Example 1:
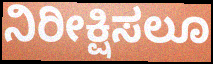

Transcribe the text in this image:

ನಿರೀಕ್ಷಿಸಲೂ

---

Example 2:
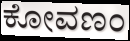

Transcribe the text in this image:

ಕೋವಣಂ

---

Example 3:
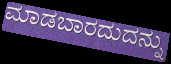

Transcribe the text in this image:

ಮಾಡಬಾರದುದನ್ನು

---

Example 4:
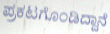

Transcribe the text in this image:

ಪ್ರಕಟಗೊಂಡಿದ್ದಾನೆ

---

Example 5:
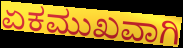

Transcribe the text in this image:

ಏಕಮುಖವಾಗಿ